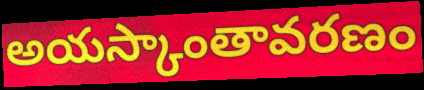
అయస్కాంతావరణం